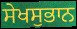
ਸੇਖਸੁਭਾਨ